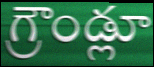
గ్రౌండ్లూ